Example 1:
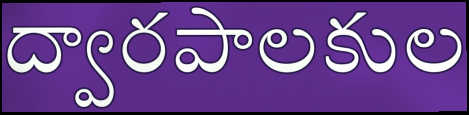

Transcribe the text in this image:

ద్వారపాలకుల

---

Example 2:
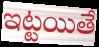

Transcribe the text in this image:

ఇట్టయితే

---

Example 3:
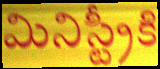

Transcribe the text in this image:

మినిస్ట్రీకి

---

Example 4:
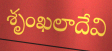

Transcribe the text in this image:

శృంఖలాదేవి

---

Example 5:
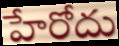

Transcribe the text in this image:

హేరోదు